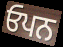
ਓਪਨ